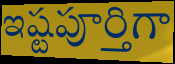
ఇష్టపూర్తిగా